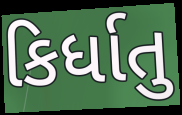
કિર્ધાતુ